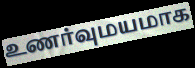
உணர்வுமயமாக